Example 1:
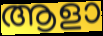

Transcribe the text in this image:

ആളാ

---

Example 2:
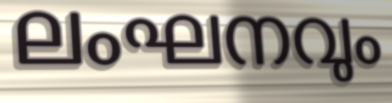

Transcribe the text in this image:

ലംഘനവും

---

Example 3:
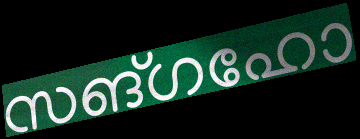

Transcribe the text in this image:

സങ്ഗഹോ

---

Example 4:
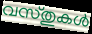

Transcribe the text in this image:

വസ്തുകൾ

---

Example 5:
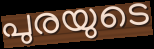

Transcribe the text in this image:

പുരയുടെ